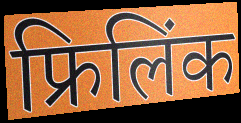
फ्रिलिंक